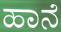
ಹಾನೆ